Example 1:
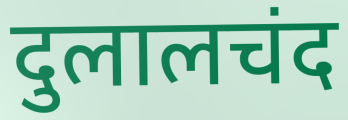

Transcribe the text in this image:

दुलालचंद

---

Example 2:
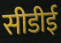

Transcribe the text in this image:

सीडीई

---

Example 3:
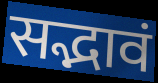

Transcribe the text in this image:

सद्भावं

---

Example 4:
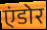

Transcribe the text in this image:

एंडोर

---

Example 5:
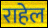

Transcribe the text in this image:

राहेल